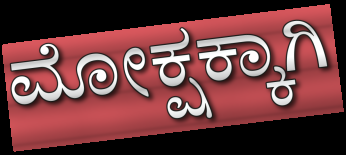
ಮೋಕ್ಷಕ್ಕಾಗಿ